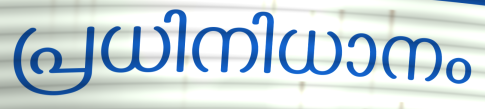
പ്രധിനിധാനം